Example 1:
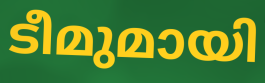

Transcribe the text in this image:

ടീമുമായി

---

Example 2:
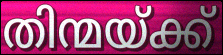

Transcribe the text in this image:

തിന്മയ്ക്ക്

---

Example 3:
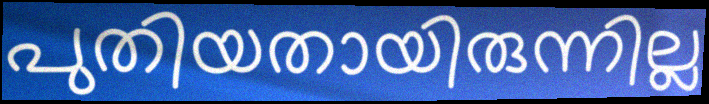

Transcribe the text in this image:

പുതിയതായിരുന്നില്ല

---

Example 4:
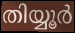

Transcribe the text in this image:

തിയ്യൂർ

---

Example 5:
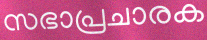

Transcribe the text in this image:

സഭാപ്രചാരക